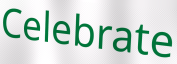
Celebrate